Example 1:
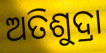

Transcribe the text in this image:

ଅତିଶୁଦ୍ରା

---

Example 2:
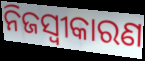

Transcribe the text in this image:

ନିଜସ୍ବୀକାରଣ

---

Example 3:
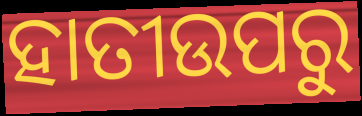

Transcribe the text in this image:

ହାତୀଉପରୁ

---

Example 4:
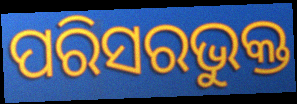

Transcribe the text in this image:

ପରିସରଭୁକ୍ତ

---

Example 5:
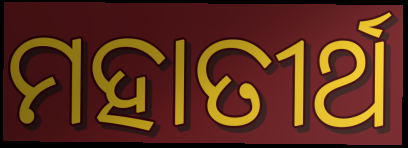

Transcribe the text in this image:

ମହାତୀର୍ଥ